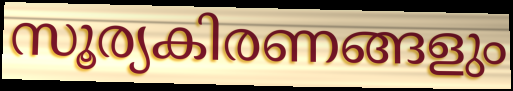
സൂര്യകിരണങ്ങളും